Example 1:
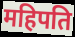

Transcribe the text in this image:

महिपति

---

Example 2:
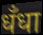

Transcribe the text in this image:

धँधा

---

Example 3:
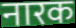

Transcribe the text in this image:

नारक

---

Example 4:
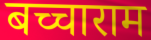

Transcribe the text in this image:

बच्चाराम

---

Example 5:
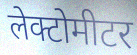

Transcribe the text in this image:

लेक्टोमीटर